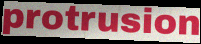
protrusion